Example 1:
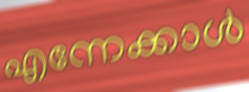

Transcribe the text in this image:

എന്നേക്കാൾ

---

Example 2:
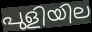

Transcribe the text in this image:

പുളിയില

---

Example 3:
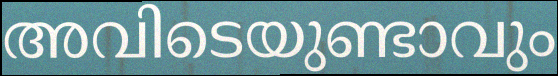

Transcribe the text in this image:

അവിടെയുണ്ടാവും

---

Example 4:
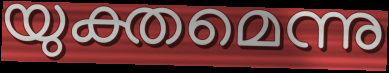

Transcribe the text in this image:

യുക്തമെന്നു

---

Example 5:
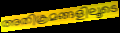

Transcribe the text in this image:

അതിക്രമങ്ങളിലൂടെ